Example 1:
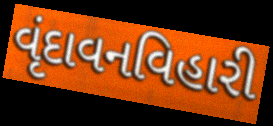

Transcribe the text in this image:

વૃંદાવનવિહારી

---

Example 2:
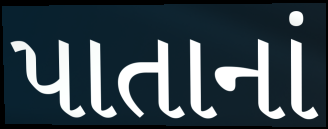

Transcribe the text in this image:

પાતાનાં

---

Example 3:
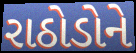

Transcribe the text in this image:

રાઠોડોને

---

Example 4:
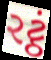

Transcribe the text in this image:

રટ્ઠં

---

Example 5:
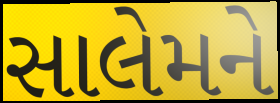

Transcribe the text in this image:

સાલેમને